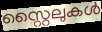
സ്റ്റൈലുകൾ